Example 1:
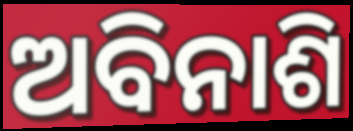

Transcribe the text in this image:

ଅବିନାଶି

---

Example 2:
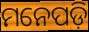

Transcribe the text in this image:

ମନେପଡ଼ି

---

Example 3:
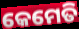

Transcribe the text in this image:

କେମେତି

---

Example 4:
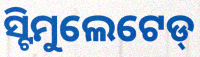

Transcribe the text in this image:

ସ୍ଟିମୁଲେଟେଡ୍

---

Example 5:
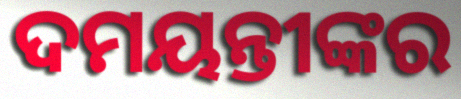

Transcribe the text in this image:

ଦମୟନ୍ତୀଙ୍କର